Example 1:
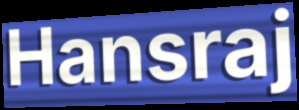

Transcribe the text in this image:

Hansraj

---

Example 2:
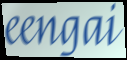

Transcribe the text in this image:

eengai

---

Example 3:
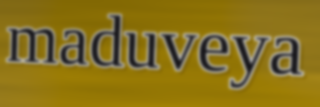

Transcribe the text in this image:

maduveya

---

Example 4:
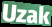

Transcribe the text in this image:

Uzak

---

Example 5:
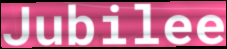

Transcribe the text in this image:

Jubilee